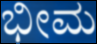
ಭೀಮ